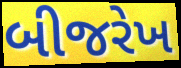
બીજરેખ